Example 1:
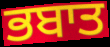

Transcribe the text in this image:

ਭਬਾਤ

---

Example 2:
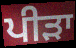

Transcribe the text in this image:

ਪੀੜਾ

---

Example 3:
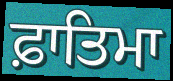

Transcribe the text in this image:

ਫ਼ਾਤਿਮਾ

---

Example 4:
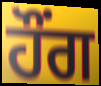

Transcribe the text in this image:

ਹੌਂਗ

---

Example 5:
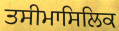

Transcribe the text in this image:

ਤਸੀਮਾਸਿਲਿਕ